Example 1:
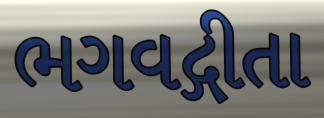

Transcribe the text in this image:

ભગવદ્ગીતા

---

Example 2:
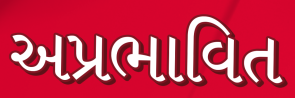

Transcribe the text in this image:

અપ્રભાવિત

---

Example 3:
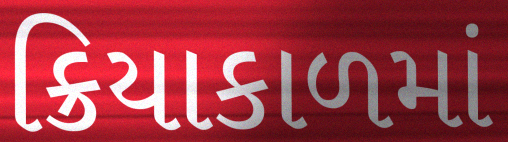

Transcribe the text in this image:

ક્રિયાકાળમાં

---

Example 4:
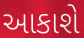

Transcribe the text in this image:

આકાશે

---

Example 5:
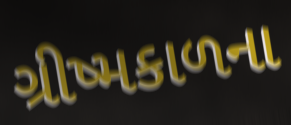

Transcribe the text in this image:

ગ્રીષ્મકાળના